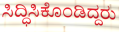
ಸಿದ್ಧಿಸಿಕೊಂಡಿದ್ದರು